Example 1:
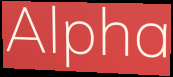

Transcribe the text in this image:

Alpha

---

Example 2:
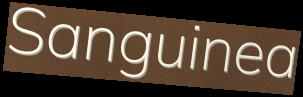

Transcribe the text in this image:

Sanguinea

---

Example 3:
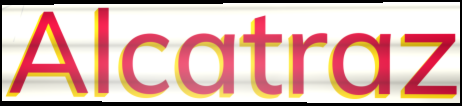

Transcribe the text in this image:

Alcatraz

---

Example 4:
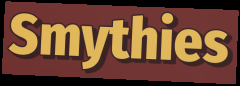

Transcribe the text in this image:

Smythies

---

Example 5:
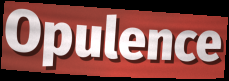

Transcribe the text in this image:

Opulence